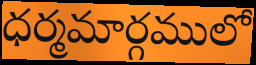
ధర్మమార్గములో